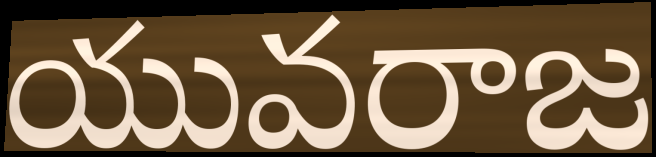
యువరాజ